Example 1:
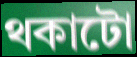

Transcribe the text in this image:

থকাটো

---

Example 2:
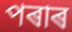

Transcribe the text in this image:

পৰাৰ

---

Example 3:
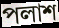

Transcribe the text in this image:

পলাশ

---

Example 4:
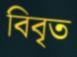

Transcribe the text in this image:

বিবৃত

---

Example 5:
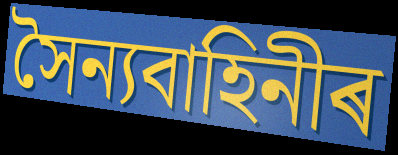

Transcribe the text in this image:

সৈন্যবাহিনীৰ